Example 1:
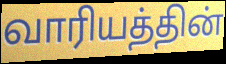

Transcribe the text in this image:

வாரியத்தின்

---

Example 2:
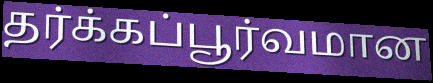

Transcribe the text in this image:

தர்க்கப்பூர்வமான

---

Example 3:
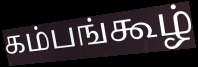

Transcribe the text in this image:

கம்பங்கூழ்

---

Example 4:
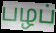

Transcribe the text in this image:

பழப்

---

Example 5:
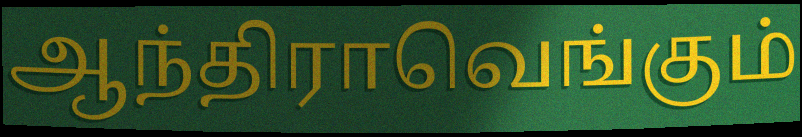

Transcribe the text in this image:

ஆந்திராவெங்கும்